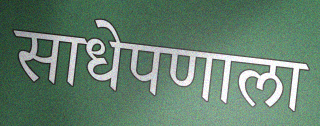
साधेपणाला